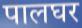
पालघर